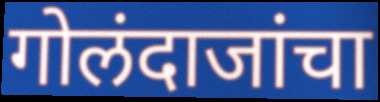
गोलंदाजांचा